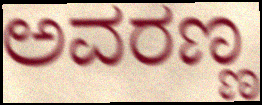
ಅವರಣ್ಣ